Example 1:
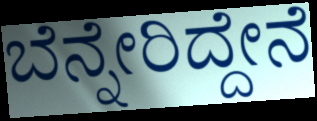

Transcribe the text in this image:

ಬೆನ್ನೇರಿದ್ದೇನೆ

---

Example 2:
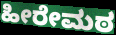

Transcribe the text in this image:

ಹೀರೇಮಠ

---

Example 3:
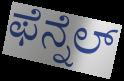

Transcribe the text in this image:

ಫೆನ್ನೆಲ್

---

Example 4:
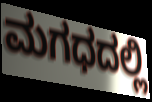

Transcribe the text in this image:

ಮಗಧದಲ್ಲಿ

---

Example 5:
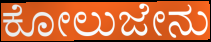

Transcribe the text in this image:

ಕೋಲುಜೇನು